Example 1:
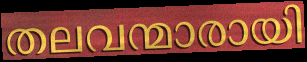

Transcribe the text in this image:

തലവന്മാരായി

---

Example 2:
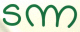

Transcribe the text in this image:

ടന്ന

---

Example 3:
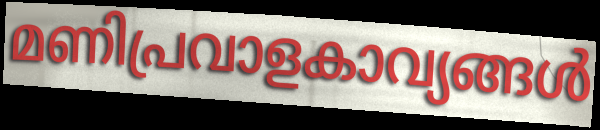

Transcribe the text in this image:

മണിപ്രവാളകാവ്യങ്ങൾ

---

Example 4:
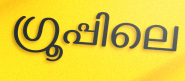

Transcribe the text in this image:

ഗ്രൂപ്പിലെ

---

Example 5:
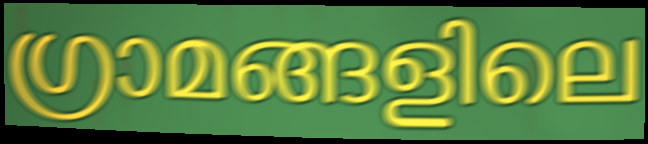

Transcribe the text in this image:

ഗ്രാമങ്ങളിലെ